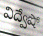
విద్వేషో